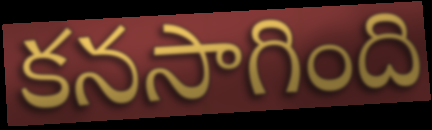
కనసాగింది